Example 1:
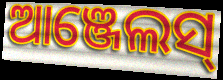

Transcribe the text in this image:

ଆଞ୍ଜେଲସ୍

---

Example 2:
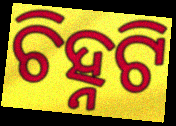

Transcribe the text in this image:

ଚିହ୍ନଟି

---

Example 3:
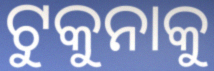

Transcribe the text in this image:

ଟୁକୁନାକୁ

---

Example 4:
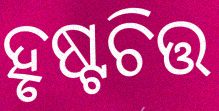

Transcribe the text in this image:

ହୃଷ୍ଟଚିତ୍ତ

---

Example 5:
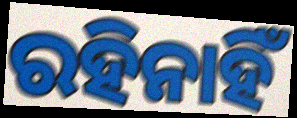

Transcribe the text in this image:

ରହିନାହିଁ